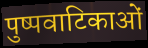
पुष्पवाटिकाओं